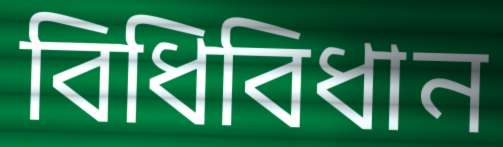
বিধিবিধান